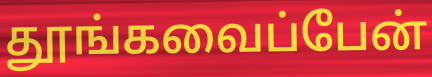
தூங்கவைப்பேன்